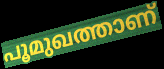
പൂമുഖത്താണ്